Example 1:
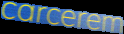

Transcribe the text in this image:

carcerem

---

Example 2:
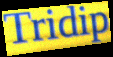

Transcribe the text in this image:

Tridip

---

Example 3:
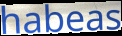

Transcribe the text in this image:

habeas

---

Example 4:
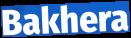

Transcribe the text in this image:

Bakhera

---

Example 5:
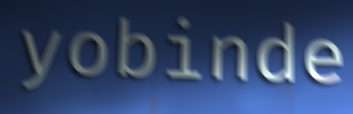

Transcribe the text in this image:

yobinde